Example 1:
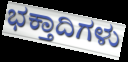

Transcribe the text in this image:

ಭಕ್ತಾದಿಗಳು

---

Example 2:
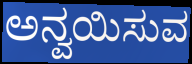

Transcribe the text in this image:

ಅನ್ವಯಿಸುವ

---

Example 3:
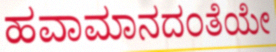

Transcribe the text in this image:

ಹವಾಮಾನದಂತೆಯೇ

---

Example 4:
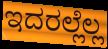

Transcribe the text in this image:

ಇದರಲ್ಲೆಲ್ಲ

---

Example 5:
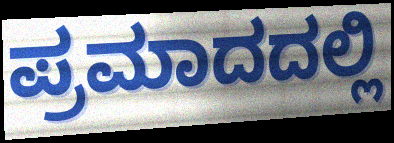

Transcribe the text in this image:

ಪ್ರಮಾದದಲ್ಲಿ